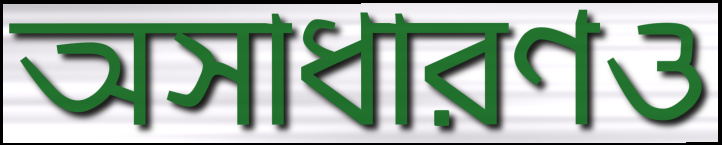
অসাধারণও